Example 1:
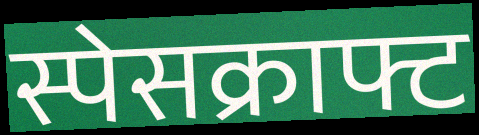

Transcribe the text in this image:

स्पेसक्राफ्ट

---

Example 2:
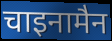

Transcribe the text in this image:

चाइनामैन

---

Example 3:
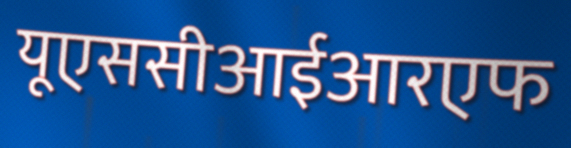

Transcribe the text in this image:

यूएससीआईआरएफ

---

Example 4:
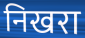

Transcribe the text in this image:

निखरा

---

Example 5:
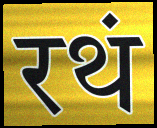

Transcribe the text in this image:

रथं